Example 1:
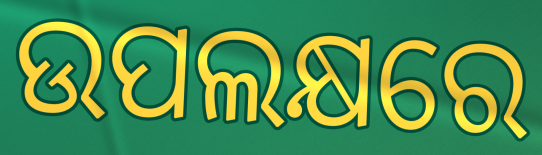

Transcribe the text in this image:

ଉପଲକ୍ଷରେ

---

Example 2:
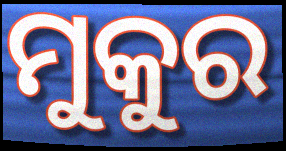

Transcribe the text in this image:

ମୁକୁର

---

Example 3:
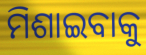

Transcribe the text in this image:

ମିଶାଇବାକୁ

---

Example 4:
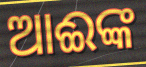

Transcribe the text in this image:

ଆଈଙ୍କ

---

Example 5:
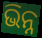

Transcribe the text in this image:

ଭିନ୍ନ